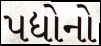
પદ્યોનો